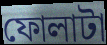
ফোলাটা